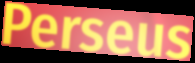
Perseus